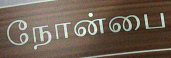
நோன்பை